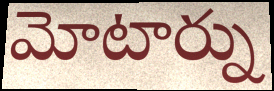
మోటార్ను